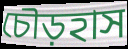
চৌড়হাস